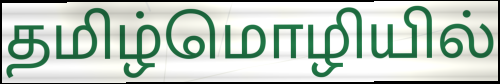
தமிழ்மொழியில்